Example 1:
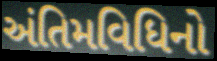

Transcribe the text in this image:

અંતિમવિધિનો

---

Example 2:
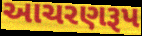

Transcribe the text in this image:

આચરણરૂપ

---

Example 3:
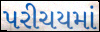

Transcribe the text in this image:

પરીચયમાં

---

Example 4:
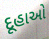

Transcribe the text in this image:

દૂહાઓ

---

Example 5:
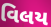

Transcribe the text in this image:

વિલય